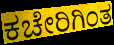
ಕಚೇರಿಗಿಂತ